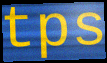
tps